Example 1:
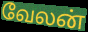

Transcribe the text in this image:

வேலன்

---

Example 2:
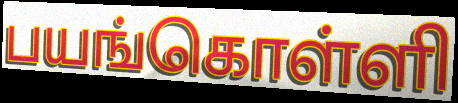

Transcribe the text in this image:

பயங்கொள்ளி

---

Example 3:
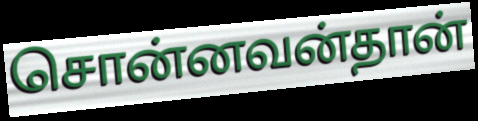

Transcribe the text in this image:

சொன்னவன்தான்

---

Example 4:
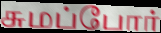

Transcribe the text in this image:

சுமப்போர்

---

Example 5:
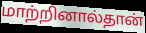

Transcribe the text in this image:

மாற்றினால்தான்